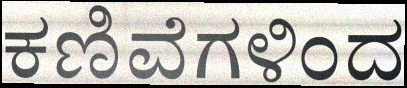
ಕಣಿವೆಗಳಿಂದ